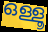
ഒള്ളൂ